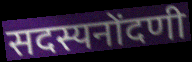
सदस्यनोंदणी